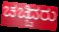
ಚಚ್ಚಿದರು